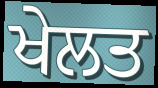
ਖੇਲਤ